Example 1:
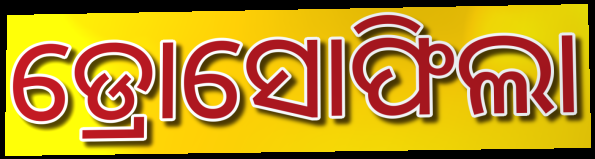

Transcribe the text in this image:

ଡ୍ରୋସୋଫିଲା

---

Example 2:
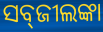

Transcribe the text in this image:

ସବ୍‌ଜୀଲଙ୍କା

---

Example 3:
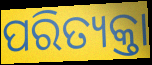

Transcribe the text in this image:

ପରିତ୍ୟକ୍ତା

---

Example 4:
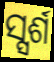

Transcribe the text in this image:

ସ୍ସର୍ଶ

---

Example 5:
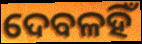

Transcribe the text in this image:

ଦେବଳହିଁ